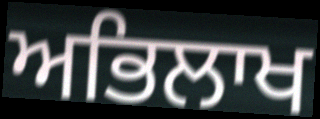
ਅਭਿਲਾਖ